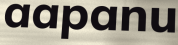
aapanu